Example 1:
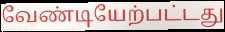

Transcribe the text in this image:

வேண்டியேற்பட்டது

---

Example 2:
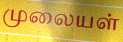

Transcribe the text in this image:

முலையள்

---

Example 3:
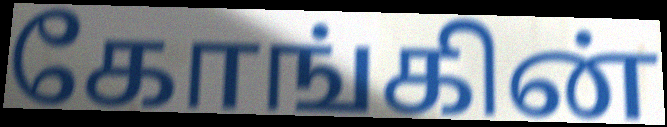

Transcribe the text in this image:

கோங்கின்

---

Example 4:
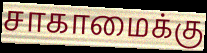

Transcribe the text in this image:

சாகாமைக்கு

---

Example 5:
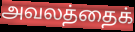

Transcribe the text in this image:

அவலத்தைக்